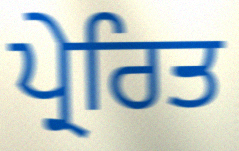
ਪ੍ਰ੍ਰੇਰਿਤ